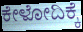
ಕೇಳೋದಿಕ್ಕೆ